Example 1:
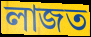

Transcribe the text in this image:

লাজত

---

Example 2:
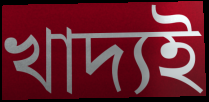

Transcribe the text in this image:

খাদ্যই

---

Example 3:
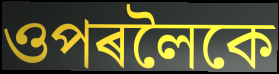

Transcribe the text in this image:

ওপৰলৈকে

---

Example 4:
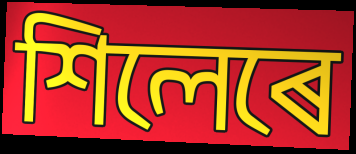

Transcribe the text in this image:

শিলেৰে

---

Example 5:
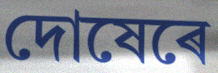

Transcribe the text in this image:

দোষেৰে